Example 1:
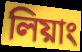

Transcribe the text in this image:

লিয়াং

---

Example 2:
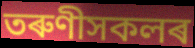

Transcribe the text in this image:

তৰুণীসকলৰ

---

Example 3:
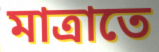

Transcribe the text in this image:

মাত্ৰাতে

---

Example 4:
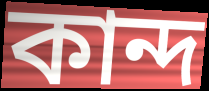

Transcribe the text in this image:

কান্দ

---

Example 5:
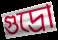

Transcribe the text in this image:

গুদ্ৰো